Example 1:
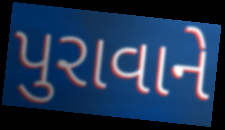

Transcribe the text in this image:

પુરાવાને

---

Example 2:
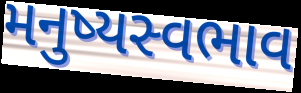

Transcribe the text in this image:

મનુષ્યસ્વભાવ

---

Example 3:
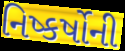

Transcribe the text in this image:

નિષ્કર્ષોની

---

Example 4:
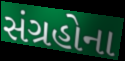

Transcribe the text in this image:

સંગ્રહોના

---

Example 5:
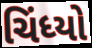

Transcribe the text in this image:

ચિંધ્યો